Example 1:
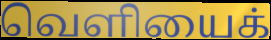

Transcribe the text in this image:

வெளியைக்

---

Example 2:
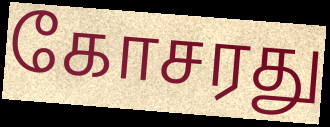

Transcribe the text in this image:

கோசரது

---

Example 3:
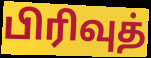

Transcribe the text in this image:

பிரிவுத்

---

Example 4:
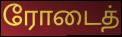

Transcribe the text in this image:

ரோடைத்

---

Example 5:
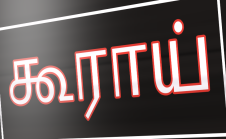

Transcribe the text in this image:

கூராய்